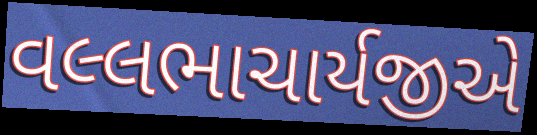
વલ્લભાચાર્યજીએ